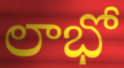
లాభో